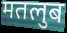
मतलुब